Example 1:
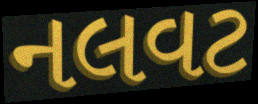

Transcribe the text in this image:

નલવટ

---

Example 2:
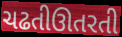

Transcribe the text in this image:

ચઢતીઊતરતી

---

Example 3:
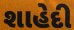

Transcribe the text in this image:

શાહેદી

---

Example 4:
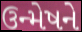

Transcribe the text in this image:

ઉન્મેષને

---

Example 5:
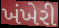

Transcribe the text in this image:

ખંખેરી